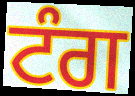
ਟੰਗ